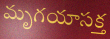
మృగయాసక్త